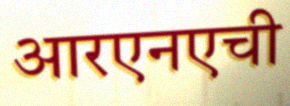
आरएनएची